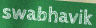
swabhavik